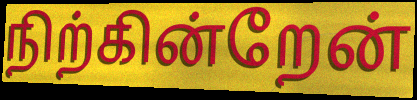
நிற்கின்றேன்